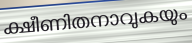
ക്ഷീണിതനാവുകയും